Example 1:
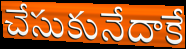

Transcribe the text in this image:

చేసుకునేదాకే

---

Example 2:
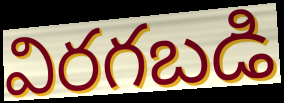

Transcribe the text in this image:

విరగబడి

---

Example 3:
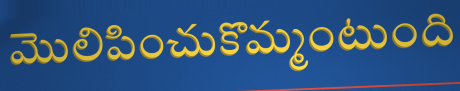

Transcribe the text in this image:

మొలిపించుకొమ్మంటుంది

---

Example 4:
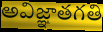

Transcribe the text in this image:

అవిజ్ఞాతగతి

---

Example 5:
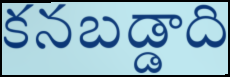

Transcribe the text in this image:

కనబడ్డాది